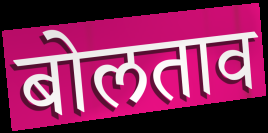
बोलताव